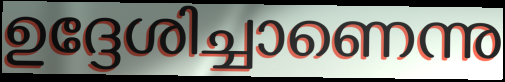
ഉദ്ദേശിച്ചാണെന്നു